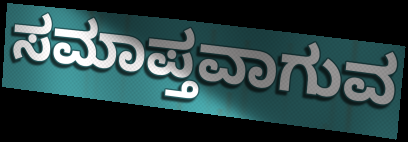
ಸಮಾಪ್ತವಾಗುವ